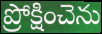
ప్రోక్షించెను